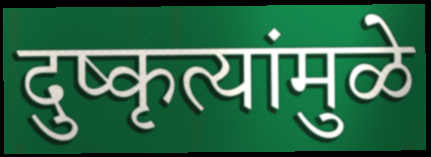
दुष्कृत्यांमुळे